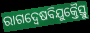
ରାଗଦ୍ୱେଷବିଯୁକ୍ତୈସ୍ତୁ